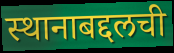
स्थानाबद्दलची